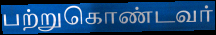
பற்றுகொண்டவர்